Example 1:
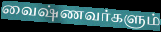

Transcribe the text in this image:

வைஷ்ணவர்களும்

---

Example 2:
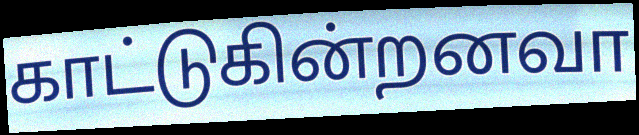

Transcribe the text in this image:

காட்டுகின்றனவா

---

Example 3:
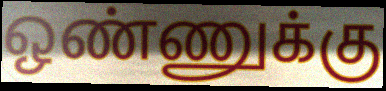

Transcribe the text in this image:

ஒண்ணுக்கு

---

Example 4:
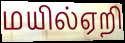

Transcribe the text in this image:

மயில்ஏறி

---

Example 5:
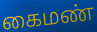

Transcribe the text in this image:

கைமண்